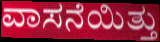
ವಾಸನೆಯಿತ್ತು